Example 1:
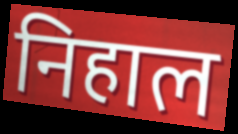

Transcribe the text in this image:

निहाल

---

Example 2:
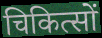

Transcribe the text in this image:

चिकित्सों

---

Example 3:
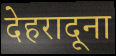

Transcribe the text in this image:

देहरादूना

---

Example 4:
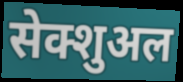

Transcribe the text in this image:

सेक्शुअल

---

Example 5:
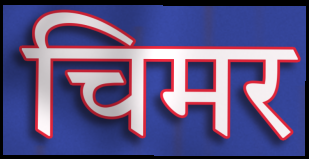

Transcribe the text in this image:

चिमर